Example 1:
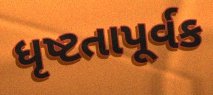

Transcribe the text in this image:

ધૃષ્ટતાપૂર્વક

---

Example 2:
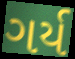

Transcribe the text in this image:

ગર્ય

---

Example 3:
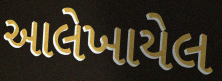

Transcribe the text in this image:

આલેખાયેલ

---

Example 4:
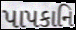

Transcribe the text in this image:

પાપકાનિ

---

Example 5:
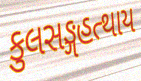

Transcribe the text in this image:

કુલસઙ્ગહત્થાય